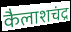
कैलाशचंद्र